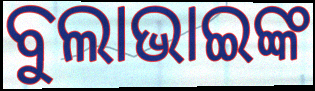
ବୁଲାଭାଇଙ୍କ